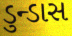
ડુન્ડાસ